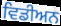
ਵਿਡੀਅਨ